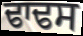
ਢਾਢਸ